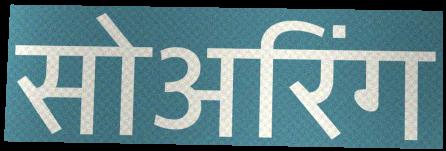
सोअरिंग